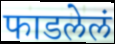
फाडलेलं